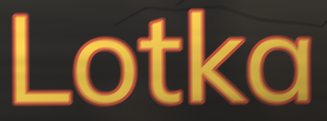
Lotka